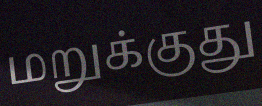
மறுக்குது